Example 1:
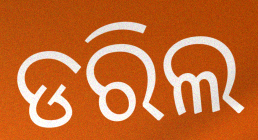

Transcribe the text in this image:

ଡରିଲ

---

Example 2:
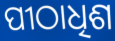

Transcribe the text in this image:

ପୀଠାଧିଶ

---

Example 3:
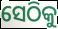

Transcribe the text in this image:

ସେଠିକୁ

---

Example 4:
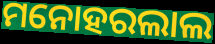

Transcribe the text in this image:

ମନୋହରଲାଲ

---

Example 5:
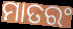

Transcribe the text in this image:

ମାତରଂ